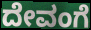
ದೇವಂಗೆ